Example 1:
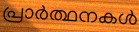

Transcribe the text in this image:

പ്രാർത്ഥനകൾ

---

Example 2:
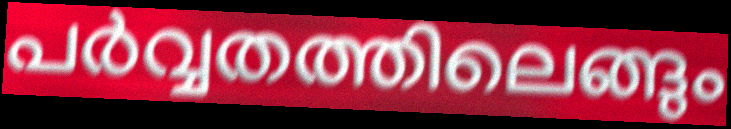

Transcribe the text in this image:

പർവ്വതത്തിലെങ്ങും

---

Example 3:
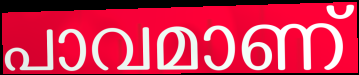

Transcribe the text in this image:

പാവമാണ്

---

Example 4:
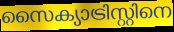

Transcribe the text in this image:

സൈക്യാട്രിസ്റ്റിനെ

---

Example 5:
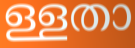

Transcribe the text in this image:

ള്ളതാ